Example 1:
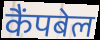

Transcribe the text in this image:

कैंपबेल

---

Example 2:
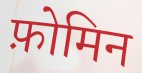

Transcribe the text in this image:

फ़ोमिन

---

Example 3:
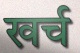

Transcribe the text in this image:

खर्च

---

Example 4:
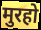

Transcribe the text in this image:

मुरहो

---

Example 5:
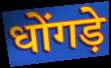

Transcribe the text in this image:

धोंगड़े